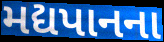
મદ્યપાનના